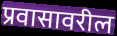
प्रवासावरील